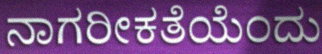
ನಾಗರೀಕತೆಯೆಂದು